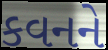
કવનને